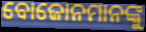
ବୋଜୋନମାନଙ୍କୁ